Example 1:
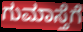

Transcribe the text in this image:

ಗುಮಾಸ್ತೆಗೆ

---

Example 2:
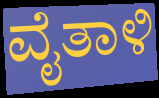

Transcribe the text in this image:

ವೈತಾಳಿ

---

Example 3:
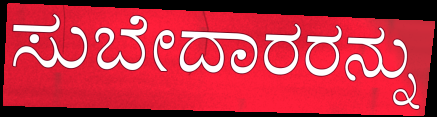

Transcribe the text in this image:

ಸುಬೇದಾರರನ್ನು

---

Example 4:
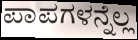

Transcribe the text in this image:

ಪಾಪಗಳನ್ನೆಲ್ಲ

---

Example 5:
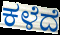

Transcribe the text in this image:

ಕಳೆದೆ